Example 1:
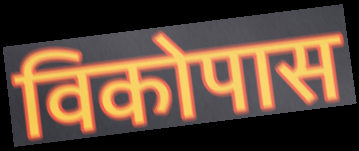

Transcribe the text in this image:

विकोपास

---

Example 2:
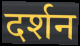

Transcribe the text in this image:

दर्शन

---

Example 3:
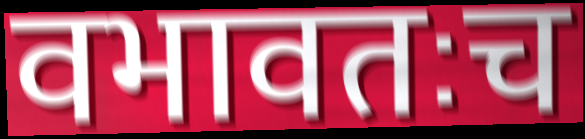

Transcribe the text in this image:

वभावतःच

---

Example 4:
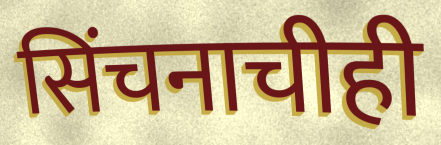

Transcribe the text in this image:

सिंचनाचीही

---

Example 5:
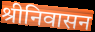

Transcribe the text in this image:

श्रीनिवासन